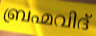
ബ്രഹ്മവിദ്